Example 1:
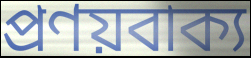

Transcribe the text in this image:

প্রণয়বাক্য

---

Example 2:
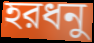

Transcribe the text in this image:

হরধনু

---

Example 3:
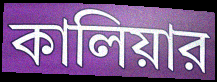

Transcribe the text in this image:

কালিয়ার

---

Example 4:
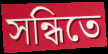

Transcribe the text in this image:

সন্ধিতে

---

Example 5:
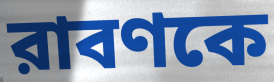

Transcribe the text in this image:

রাবণকে